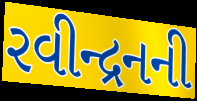
રવીન્દ્રનની